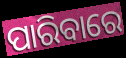
ପାରିବାରେ